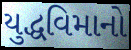
યુદ્ધવિમાનો